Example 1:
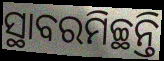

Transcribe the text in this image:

ସ୍ଥାବରମିଚ୍ଛନ୍ତି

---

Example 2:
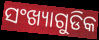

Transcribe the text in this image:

ସଂଖ୍ୟାଗୁଡିକ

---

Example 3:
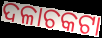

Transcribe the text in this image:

ଦଳାଚକଟା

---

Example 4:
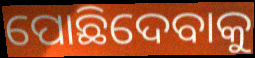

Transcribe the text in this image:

ପୋଛିଦେବାକୁ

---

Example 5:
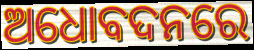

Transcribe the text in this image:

ଅଧୋବଦନରେ